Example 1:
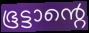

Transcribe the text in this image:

ഭൂട്ടാന്റെ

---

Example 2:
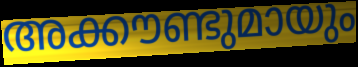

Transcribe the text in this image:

അക്കൗണ്ടുമായും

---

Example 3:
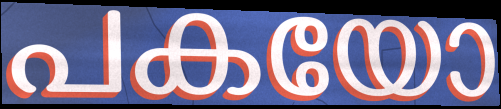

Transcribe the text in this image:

പകയോ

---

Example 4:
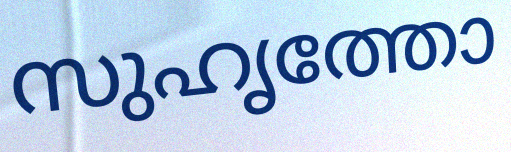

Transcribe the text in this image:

സുഹൃത്തോ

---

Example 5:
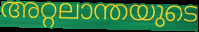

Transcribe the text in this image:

അറ്റലാന്തയുടെ